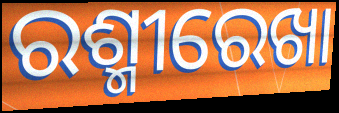
ରଶ୍ମୀରେଖା